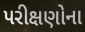
પરીક્ષણોના